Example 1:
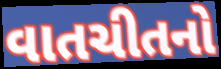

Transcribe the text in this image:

વાતચીતનો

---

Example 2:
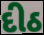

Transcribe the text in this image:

દીઠ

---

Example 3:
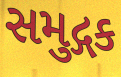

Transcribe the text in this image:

સમુદ્ગક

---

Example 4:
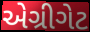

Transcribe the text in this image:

એગ્રીગેટ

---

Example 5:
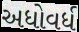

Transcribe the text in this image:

અધોવર્ધ